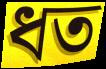
ধত